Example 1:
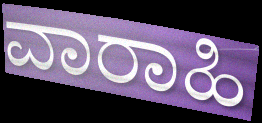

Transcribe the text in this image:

ವಾರಾಹಿ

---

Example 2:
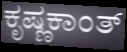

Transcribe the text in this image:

ಕೃಷ್ಣಕಾಂತ್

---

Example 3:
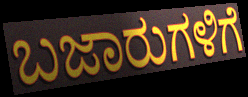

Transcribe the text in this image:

ಬಜಾರುಗಳಿಗೆ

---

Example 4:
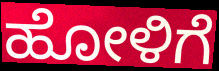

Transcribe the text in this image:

ಹೋಳಿಗೆ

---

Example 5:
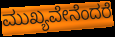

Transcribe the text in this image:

ಮುಖ್ಯವೇನೆಂದರೆ